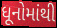
ધૂનોમાંથી